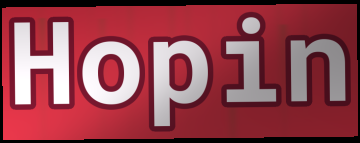
Hopin